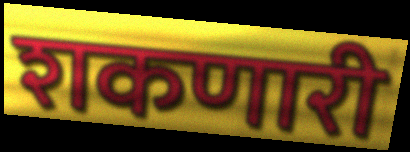
शकणारी